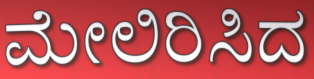
ಮೇಲಿರಿಸಿದ